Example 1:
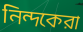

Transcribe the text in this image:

নিন্দকেরা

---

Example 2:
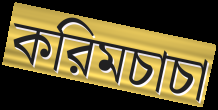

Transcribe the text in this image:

করিমচাচা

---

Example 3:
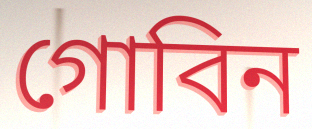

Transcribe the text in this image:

গোবিন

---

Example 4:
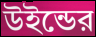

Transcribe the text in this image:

উইন্ডের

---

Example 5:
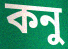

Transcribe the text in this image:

কনু